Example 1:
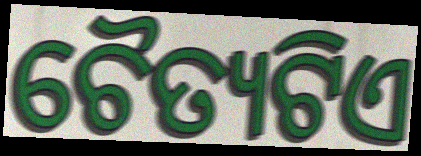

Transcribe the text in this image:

ଚୈତ୍ୟଟିଏ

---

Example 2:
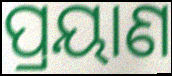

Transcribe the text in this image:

ପ୍ରୟାଣ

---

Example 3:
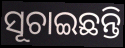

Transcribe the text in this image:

ସୂଚାଇଛନ୍ତି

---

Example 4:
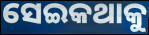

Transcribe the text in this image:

ସେଇକଥାକୁ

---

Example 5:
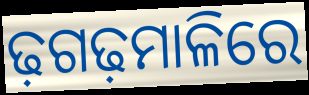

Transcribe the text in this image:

ଢ଼ଗଢ଼ମାଳିରେ